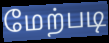
மேற்படி